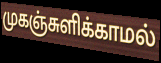
முகஞ்சுளிக்காமல்